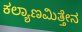
ಕಲ್ಯಾಣಮಿತ್ತೇನ